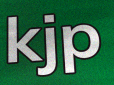
kjp